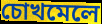
চোখমেলে